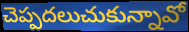
చెప్పదలుచుకున్నావో